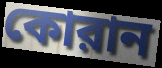
কোরান